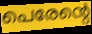
പെരേന്റെ